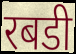
रबडी